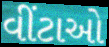
વીંટાઓ